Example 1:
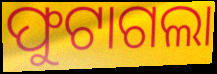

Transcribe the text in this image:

ଫୁଟାଗଲା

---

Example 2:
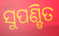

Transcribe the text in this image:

ସୁପଣ୍ଡିତ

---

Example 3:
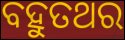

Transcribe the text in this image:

ବହୁତଥର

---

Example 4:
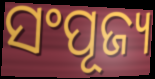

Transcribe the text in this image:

ସଂପୂଜ୍ଯ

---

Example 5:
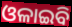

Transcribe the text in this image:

ଓଳାଇବି